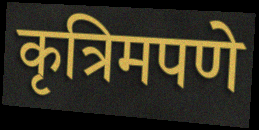
कृत्रिमपणे